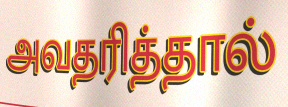
அவதரித்தால்